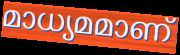
മാധ്യമമാണ്